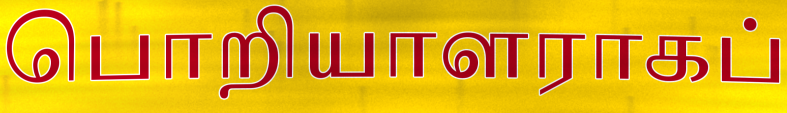
பொறியாளராகப்